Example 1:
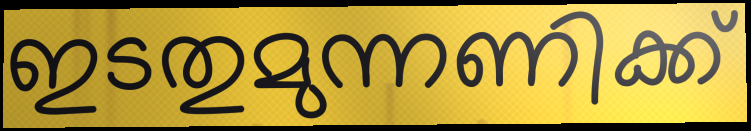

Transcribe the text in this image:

ഇടതുമുന്നണിക്ക്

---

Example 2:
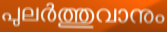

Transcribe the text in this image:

പുലർത്തുവാനും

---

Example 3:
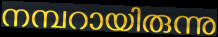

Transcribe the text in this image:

നമ്പറായിരുന്നു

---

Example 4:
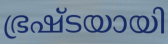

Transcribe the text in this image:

ഭ്രഷ്ടയായി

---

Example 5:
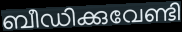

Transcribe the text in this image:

ബീഡിക്കുവേണ്ടി